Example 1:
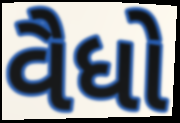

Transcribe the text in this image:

વૈધો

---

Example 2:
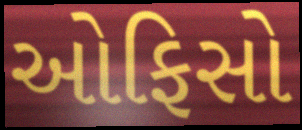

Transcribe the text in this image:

ઓફિસો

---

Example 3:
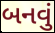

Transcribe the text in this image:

બનવું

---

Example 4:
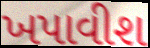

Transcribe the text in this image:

ખપાવીશ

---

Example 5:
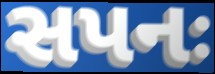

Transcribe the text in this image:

સપનઃ